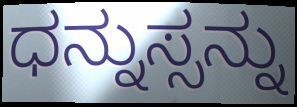
ಧನ್ನುಸ್ಸನ್ನು